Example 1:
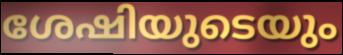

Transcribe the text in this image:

ശേഷിയുടെയും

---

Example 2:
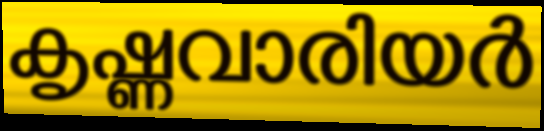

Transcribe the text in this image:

കൃഷ്ണവാരിയർ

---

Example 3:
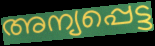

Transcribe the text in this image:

അന്യപ്പെട്ട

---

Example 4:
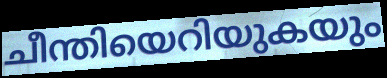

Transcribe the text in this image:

ചീന്തിയെറിയുകയും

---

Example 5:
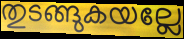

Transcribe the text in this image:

തുടങ്ങുകയല്ലേ